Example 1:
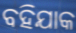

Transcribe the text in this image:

ବହିଯାକ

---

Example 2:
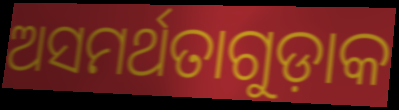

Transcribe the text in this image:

ଅସମର୍ଥତାଗୁଡ଼ାକ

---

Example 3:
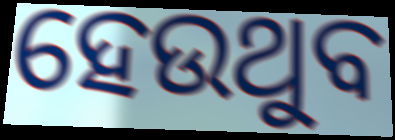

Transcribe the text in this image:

ହେଉଥୁବ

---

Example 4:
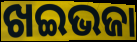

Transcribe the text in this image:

ଖଇଭଜା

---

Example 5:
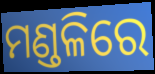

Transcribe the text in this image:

ମଣ୍ଡଳିରେ